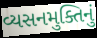
વ્યસનમુક્તિનું